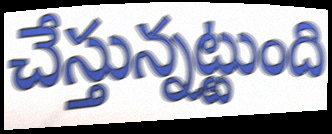
చేస్తున్నట్టుంది